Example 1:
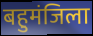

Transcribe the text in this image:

बहुमंजिला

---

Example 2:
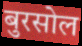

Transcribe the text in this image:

बुरसोल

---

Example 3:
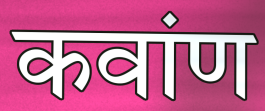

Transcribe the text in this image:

कवांण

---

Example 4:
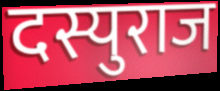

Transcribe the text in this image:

दस्युराज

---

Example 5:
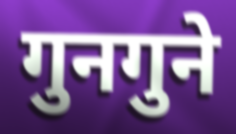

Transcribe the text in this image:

गुनगुने